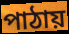
পাঠায়